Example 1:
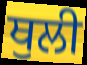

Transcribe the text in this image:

ਥੁਲੀ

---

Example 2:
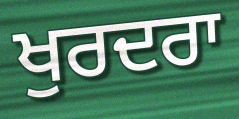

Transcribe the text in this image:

ਖੁਰਦਰਾ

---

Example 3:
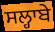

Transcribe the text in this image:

ਸਲ੍ਹਾਬੇ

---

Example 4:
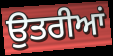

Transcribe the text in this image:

ਉਤਰੀਆਂ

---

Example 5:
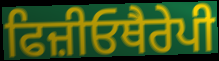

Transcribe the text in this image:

ਫਿਜ਼ੀਓਥੈਰੇਪੀ